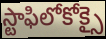
స్టాఫిలోకోక్సై